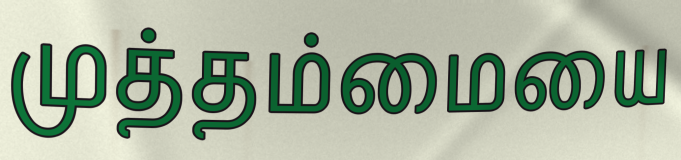
முத்தம்மையை